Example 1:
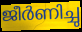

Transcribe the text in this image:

ജീർണിച്ചു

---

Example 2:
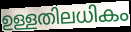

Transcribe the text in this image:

ഉള്ളതിലധികം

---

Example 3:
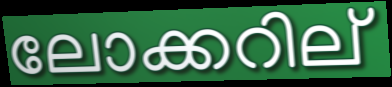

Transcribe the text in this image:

ലോക്കറില്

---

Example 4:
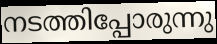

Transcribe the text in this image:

നടത്തിപ്പോരുന്നു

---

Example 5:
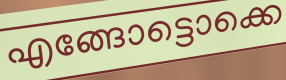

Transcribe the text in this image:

എങ്ങോട്ടൊക്കെ